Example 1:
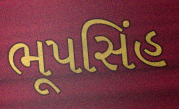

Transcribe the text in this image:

ભૂપસિંહ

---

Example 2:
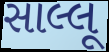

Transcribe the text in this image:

સાલ્લૂ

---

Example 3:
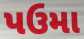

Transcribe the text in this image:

પઉમા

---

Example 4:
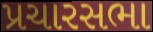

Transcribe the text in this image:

પ્રચારસભા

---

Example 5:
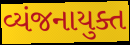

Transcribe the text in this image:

વ્યંજનાયુક્ત